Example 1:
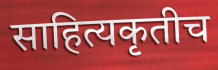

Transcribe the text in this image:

साहित्यकृतीच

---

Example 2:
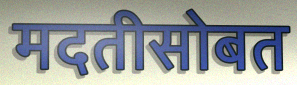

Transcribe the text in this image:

मदतीसोबत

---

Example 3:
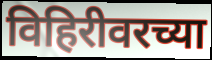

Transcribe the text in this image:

विहिरीवरच्या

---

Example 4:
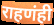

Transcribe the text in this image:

राहणंही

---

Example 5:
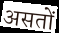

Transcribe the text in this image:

असतों